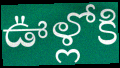
ఊళ్లోకి